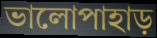
ভালোপাহাড়